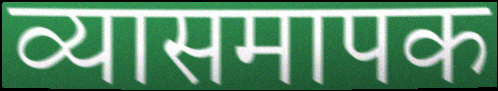
व्यासमापक